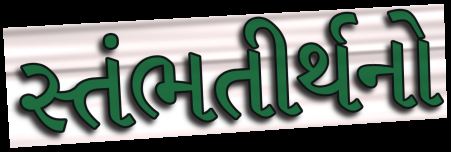
સ્તંભતીર્થનો